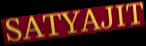
SATYAJIT